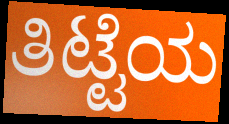
ತಿಟ್ಟೆಯ